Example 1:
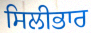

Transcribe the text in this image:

ਸਿਲੀਭਾਰ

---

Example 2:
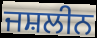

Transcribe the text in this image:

ਜਸ਼ਲੀਨ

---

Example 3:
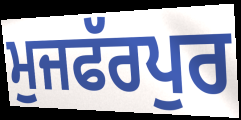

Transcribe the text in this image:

ਮੁਜਫੱਰਪੁਰ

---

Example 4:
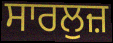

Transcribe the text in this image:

ਸਾਰਲੁਜ਼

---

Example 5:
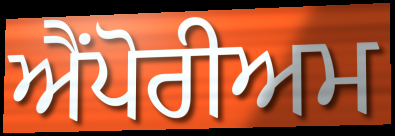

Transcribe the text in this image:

ਐਂਪੋਰੀਅਮ